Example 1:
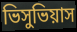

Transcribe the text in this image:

ভিসুভিয়াস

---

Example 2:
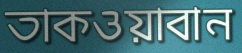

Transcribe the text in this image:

তাকওয়াবান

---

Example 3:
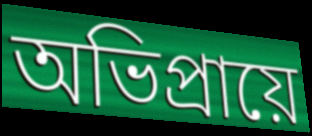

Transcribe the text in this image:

অভিপ্রায়ে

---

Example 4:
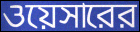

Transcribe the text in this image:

ওয়েসারের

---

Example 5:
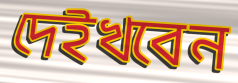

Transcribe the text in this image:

দেইখবেন